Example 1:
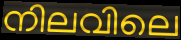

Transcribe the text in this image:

നിലവിലെ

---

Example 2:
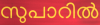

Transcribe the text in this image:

സുപാറിൽ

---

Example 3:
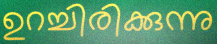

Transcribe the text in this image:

ഉറച്ചിരിക്കുന്നു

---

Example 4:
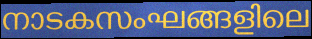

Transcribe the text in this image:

നാടകസംഘങ്ങളിലെ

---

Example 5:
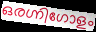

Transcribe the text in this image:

ഒരഗ്നിഗോളം